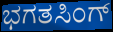
ಭಗತಸಿಂಗ್